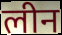
लीन